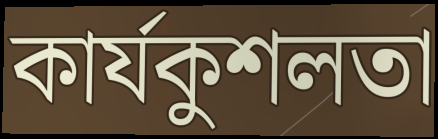
কাৰ্যকুশলতা